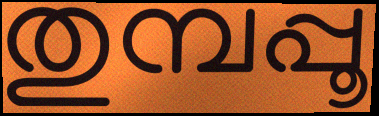
തുമ്പപ്പൂ